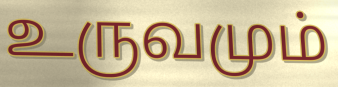
உருவமும்